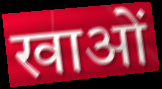
खाओं